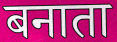
बनाता